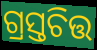
ଗ୍ରସ୍ତଚିତ୍ତ